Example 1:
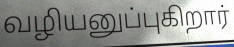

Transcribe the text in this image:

வழியனுப்புகிறார்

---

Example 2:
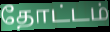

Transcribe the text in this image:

தோட்டம்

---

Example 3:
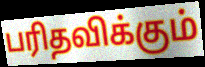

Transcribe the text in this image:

பரிதவிக்கும்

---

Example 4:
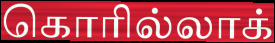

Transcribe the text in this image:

கொரில்லாக்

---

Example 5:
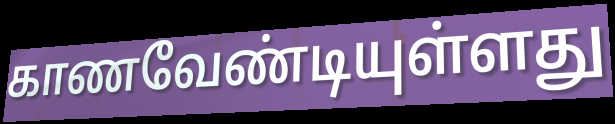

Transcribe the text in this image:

காணவேண்டியுள்ளது